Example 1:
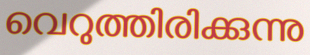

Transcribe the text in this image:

വെറുത്തിരിക്കുന്നു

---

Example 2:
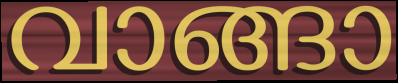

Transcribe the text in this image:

വാങ്ങാ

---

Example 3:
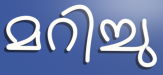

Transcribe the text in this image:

മറിച്ചു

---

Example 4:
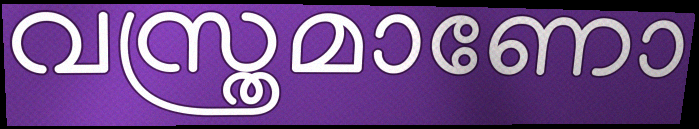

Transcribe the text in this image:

വസ്ത്രമാണോ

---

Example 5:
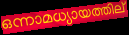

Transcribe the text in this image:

ഒന്നാമധ്യായത്തില്